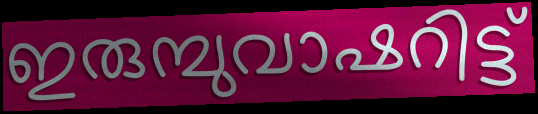
ഇരുമ്പുവാഷറിട്ട്